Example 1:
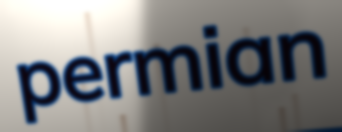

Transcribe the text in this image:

permian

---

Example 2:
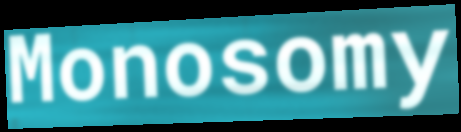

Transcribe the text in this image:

Monosomy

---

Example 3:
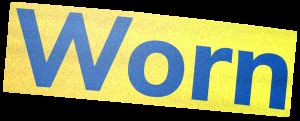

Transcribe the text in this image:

Worn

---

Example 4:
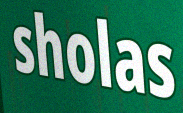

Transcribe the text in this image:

sholas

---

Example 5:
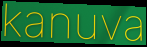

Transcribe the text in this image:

kanuva